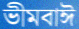
ভীমবাঈ